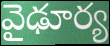
వైఢూర్య